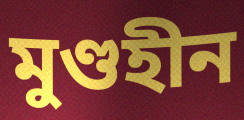
মুণ্ডহীন